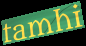
tamhi